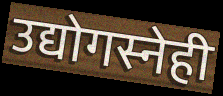
उद्योगस्नेही